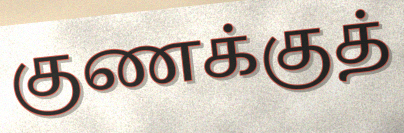
குணக்குத்